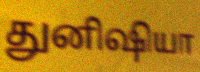
துனிஷியா